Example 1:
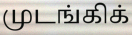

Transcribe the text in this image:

முடங்கிக்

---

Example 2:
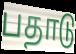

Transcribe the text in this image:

பதாடு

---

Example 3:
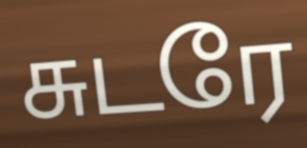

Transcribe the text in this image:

சுடரே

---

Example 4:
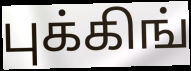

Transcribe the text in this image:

புக்கிங்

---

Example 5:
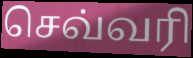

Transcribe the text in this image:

செவ்வரி